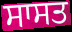
ਸਾਸਤ